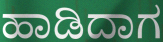
ಹಾಡಿದಾಗ